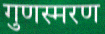
गुणस्मरण